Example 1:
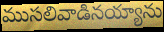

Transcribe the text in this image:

ముసలివాడినయ్యాను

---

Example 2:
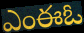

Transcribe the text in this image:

ఎంఈఓ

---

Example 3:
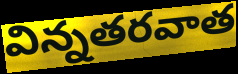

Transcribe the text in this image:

విన్నతరవాత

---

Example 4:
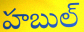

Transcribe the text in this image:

హబుల్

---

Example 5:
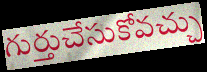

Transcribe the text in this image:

గుర్తుచేసుకోవచ్చు